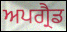
ਅਪਗ੍ਰੈਡ